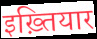
इख़्तियार